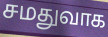
சமதுவாக